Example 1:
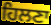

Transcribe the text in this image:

ਹਿਲਣਾ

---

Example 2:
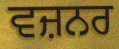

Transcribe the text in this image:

ਵਜ਼ਨਰ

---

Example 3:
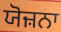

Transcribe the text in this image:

ਯੋਜ਼ਨਾ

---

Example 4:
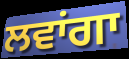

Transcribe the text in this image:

ਲਵਾਂਗਾ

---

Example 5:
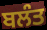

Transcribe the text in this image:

ਬਲੰਤ